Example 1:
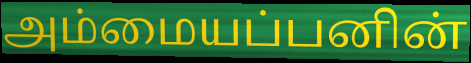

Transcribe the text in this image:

அம்மையப்பனின்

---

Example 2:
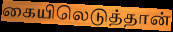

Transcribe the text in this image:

கையிலெடுத்தான்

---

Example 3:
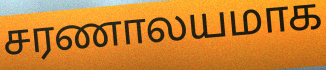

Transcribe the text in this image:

சரணாலயமாக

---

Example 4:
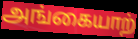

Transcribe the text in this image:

அங்கையாற்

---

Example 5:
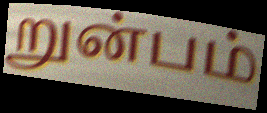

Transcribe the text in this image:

றுன்பம்